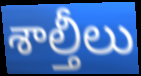
శాల్తీలు